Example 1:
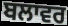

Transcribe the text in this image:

ਬਲਾਵਰ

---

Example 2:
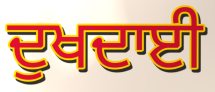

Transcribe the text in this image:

ਦੁਖਦਾਈ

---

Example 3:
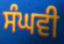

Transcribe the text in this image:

ਸੰਘਵੀ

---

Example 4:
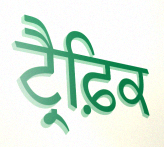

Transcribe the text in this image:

ਟ੍ਰੈਫ਼ਿਕ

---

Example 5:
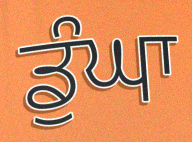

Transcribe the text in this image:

ਡੁੰਘਾ